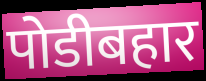
पोडीबहार